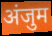
अंजुम